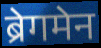
ब्रेगमेन